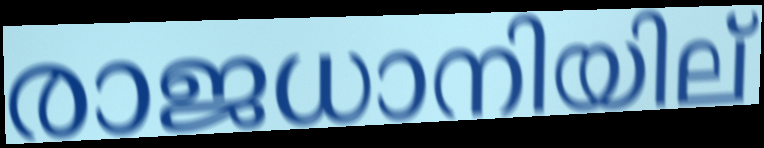
രാജധാനിയില്